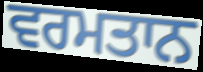
ਵਰਮਤਾਨ